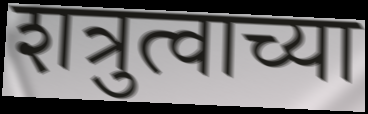
शत्रुत्वाच्या